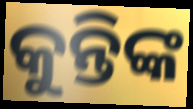
କୁନ୍ତିଙ୍କ